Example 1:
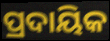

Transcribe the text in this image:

ପ୍ରଦାୟିକ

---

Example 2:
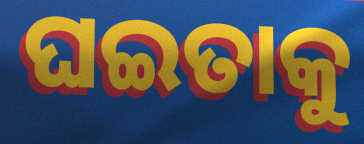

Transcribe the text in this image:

ଘଇତାକୁ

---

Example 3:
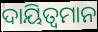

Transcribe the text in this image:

ଦାୟିତ୍ୱମାନ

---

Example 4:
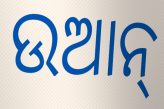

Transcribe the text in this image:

ଉଆନ୍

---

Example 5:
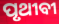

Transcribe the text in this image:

ପୃଥୀବୀ